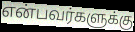
என்பவர்களுக்கு